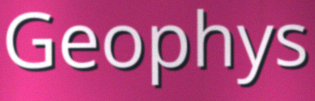
Geophys